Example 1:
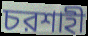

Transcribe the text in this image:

চরশাহী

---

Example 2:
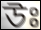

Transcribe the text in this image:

উঃ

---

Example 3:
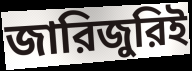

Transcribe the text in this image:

জারিজুরিই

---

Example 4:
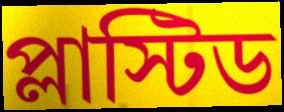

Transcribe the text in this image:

প্লাস্টিড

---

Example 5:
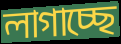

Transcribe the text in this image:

লাগাচ্ছে